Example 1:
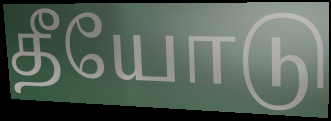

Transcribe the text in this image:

தீயோடு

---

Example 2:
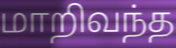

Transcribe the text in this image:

மாறிவந்த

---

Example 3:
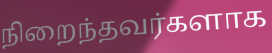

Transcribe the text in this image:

நிறைந்தவர்களாக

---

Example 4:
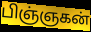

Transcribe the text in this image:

பிஞ்ஞகன்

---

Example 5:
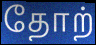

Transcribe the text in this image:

தோற்